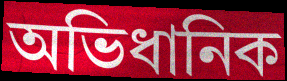
অভিধানিক